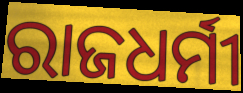
ରାଜଧର୍ମୀ